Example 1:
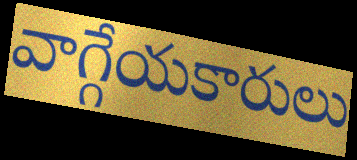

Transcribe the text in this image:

వాగ్గేయకారులు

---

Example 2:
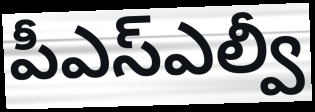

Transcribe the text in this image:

పీఎస్ఎల్వీ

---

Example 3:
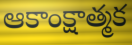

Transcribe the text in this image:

ఆకాంక్షాత్మక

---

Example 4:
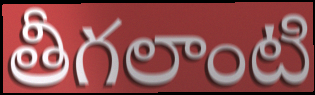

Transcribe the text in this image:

తీగలాంటి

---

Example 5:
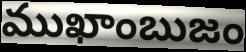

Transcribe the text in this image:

ముఖాంబుజం